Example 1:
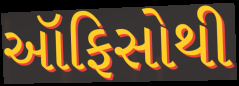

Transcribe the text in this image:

ઑફિસોથી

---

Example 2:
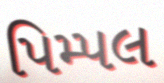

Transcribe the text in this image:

પિમ્પલ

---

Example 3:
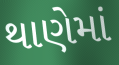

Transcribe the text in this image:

થાણેમાં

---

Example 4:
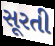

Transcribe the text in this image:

સૂરતી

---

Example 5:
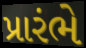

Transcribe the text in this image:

પ્રારંભે